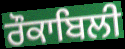
ਰੌਕਾਬਿਲੀ